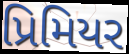
પ્રિમિયર